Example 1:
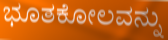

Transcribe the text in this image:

ಭೂತಕೋಲವನ್ನು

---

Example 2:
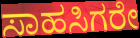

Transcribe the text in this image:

ಸಾಹಸಿಗರೇ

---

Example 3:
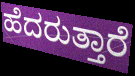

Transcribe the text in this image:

ಹೆದರುತ್ತಾರೆ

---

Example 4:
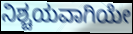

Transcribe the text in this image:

ನಿಶ್ಚಯವಾಗಿಯೇ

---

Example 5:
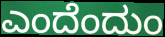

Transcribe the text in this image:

ಎಂದೆಂದುಂ